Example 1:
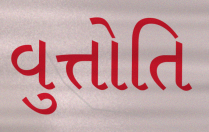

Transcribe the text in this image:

વુત્તોતિ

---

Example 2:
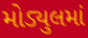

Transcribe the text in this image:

મોડ્યુલમાં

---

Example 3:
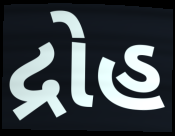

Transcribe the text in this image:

દ્રોહ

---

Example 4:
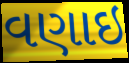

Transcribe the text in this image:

વણાઇ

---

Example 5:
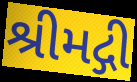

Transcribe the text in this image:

શ્રીમદ્ગી